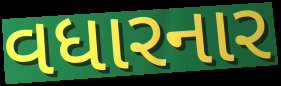
વધારનાર